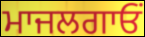
ਮਾਜਲਗਾਓਂ